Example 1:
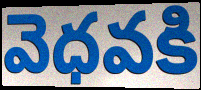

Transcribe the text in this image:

వెధవకి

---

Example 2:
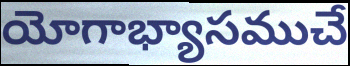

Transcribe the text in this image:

యోగాభ్యాసముచే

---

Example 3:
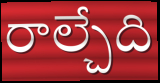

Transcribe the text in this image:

రాల్చేది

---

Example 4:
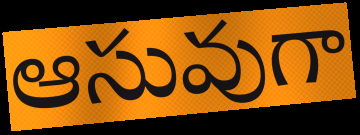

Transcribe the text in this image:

ఆసువుగా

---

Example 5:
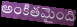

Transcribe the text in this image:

అంకితమైంది